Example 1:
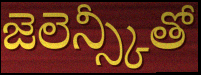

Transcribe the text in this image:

జెలెన్స్కీతో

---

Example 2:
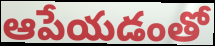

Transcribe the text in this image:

ఆపేయడంతో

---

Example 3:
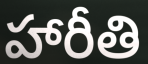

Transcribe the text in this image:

హారీతి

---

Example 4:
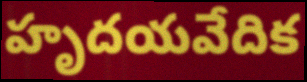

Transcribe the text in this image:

హృదయవేదిక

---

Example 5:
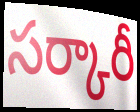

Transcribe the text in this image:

సర్కారీ